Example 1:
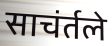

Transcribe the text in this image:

साचंर्तले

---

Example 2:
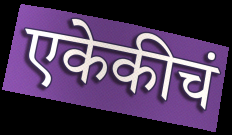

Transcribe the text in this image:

एकेकीचं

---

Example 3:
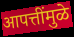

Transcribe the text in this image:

आपत्तींमुळे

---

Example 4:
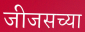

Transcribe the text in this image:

जीजसच्या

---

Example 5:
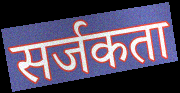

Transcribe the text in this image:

सर्जकता